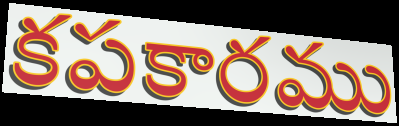
కపకారము